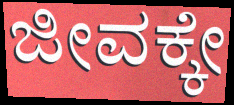
ಜೀವಕ್ಕೇ